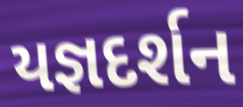
યજ્ઞદર્શન